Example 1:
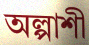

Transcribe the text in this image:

অল্পাশী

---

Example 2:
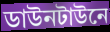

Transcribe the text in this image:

ডাউনটাউনে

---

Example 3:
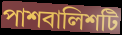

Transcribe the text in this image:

পাশবালিশটি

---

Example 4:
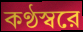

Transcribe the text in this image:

কণ্ঠস্বরে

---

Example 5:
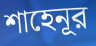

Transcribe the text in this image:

শাহেনূর